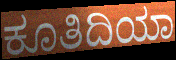
ಕೂತಿದಿಯಾ